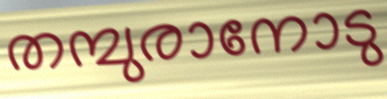
തമ്പുരാനോടു